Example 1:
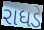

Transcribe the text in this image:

રાધડે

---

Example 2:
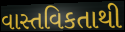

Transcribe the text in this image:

વાસ્તવિકતાથી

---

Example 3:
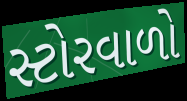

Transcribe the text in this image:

સ્ટોરવાળો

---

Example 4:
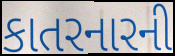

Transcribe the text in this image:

કાતરનારની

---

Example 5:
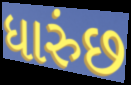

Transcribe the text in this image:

ધારુંછ